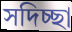
সদিচ্ছা